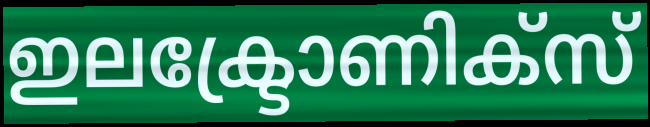
ഇലക്ട്രോണിക്സ്